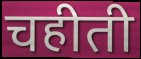
चहीती